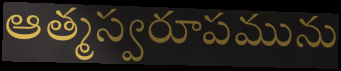
ఆత్మస్వరూపమును